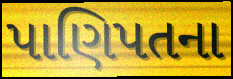
પાણિપતના